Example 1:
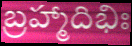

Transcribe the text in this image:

బ్రహ్మాదిభిః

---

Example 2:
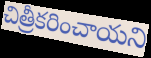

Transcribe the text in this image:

చిత్రీకరించాయని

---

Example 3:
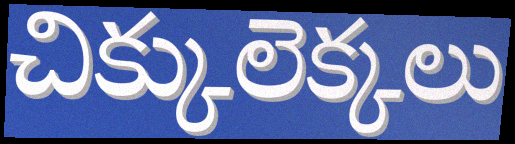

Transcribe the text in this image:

చిక్కులెక్కలు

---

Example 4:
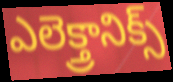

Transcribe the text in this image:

ఎలెక్త్రానిక్స్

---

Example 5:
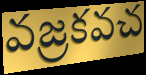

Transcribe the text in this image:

వజ్రకవచ